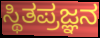
ಸ್ಥಿತಪ್ರಜ್ಞನ